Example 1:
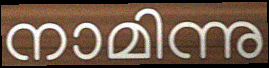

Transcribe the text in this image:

നാമിന്നു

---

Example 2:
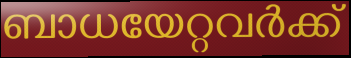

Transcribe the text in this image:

ബാധയേറ്റവർക്ക്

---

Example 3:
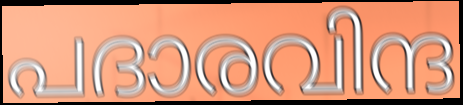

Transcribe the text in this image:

പദാരവിന്ദ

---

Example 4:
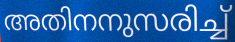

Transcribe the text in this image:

അതിനനുസരിച്ച്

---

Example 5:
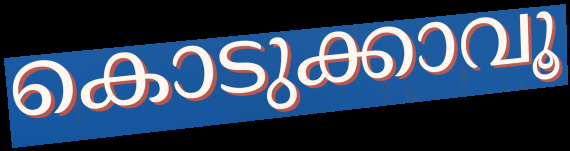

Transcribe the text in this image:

കൊടുക്കാവൂ